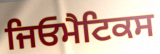
ਜਿਓਮੈਟਿਕਸ